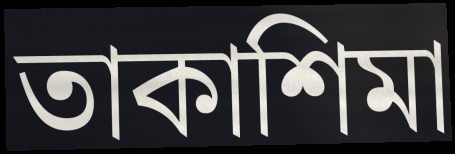
তাকাশিমা